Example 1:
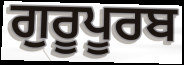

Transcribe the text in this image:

ਗੁਰੂਪੂਰਬ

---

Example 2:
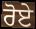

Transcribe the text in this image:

ਰੋਏ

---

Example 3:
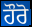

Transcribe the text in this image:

ਹੌਰੋ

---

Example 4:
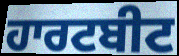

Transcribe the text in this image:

ਹਾਰਟਬੀਟ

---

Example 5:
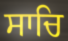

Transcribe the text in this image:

ਸਾਚਿ